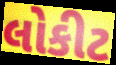
લોકીટ